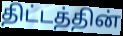
திட்டத்தின்